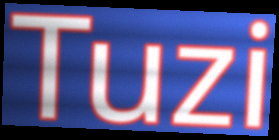
Tuzi